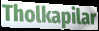
Tholkapilar